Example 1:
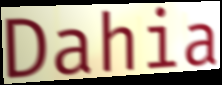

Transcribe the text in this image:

Dahia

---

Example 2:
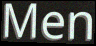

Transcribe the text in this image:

Men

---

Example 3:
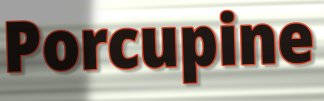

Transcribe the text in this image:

Porcupine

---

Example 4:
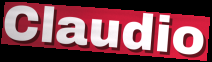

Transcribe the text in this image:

Claudio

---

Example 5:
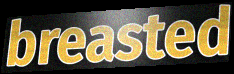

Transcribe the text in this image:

breasted